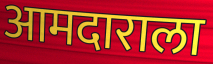
आमदाराला